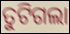
ତୁଟିଗଲା